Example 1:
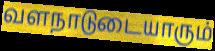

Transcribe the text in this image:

வளநாடுடையாரும்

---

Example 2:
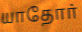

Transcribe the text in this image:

யாதோர்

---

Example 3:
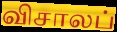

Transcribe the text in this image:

விசாலப்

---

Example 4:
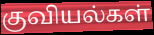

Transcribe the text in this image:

குவியல்கள்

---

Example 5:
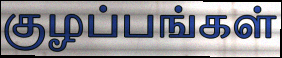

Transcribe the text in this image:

குழப்பங்கள்